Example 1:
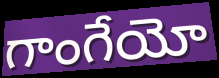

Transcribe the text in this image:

గాంగేయో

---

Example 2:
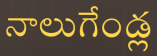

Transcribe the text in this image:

నాలుగేండ్ల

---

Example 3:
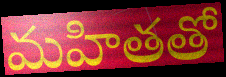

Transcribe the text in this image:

మహితతో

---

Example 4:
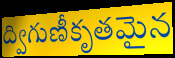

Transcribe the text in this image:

ద్విగుణీకృతమైన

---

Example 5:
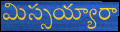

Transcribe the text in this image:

మిస్సయ్యారా